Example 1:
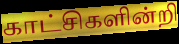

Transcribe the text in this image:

காட்சிகளின்றி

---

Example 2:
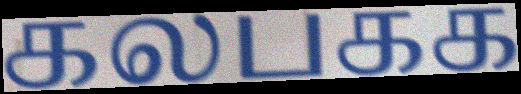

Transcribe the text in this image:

கலபகக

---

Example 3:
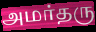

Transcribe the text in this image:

அமர்தரு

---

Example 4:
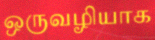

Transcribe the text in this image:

ஒருவழியாக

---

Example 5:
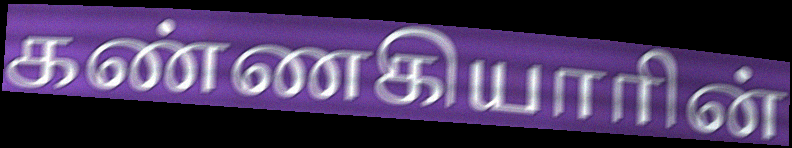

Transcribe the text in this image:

கண்ணகியாரின்